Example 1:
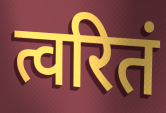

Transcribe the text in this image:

त्वरितं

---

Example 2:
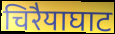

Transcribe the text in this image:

चिरैयाघाट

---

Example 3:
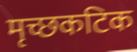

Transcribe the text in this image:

मृच्छकटिक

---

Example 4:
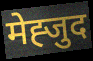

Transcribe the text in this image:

मेह्जुद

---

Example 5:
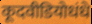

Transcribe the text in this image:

कूदवीडियोधंधे